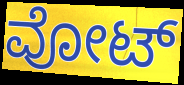
ವೋಟ್